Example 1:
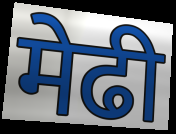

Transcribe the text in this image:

मेढी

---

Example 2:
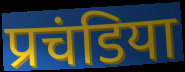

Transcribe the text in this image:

प्रचंडिया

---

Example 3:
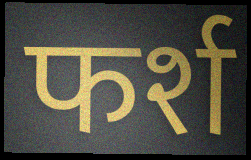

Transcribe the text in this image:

फर्श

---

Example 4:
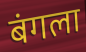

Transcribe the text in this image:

बंगला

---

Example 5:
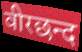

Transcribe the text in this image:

वीरछन्द